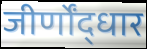
जीर्णोंद्धार